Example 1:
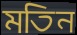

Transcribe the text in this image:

মতিন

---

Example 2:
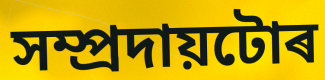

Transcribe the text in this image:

সম্প্ৰদায়টোৰ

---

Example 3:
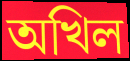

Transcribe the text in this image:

অখিল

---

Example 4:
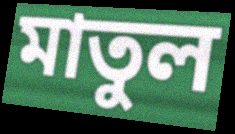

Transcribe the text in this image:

মাতুল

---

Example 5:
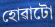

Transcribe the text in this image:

হোৱাটো